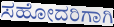
ಸಹೋದರಿಗಾಗಿ